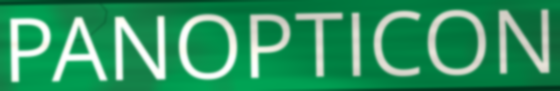
PANOPTICON